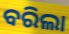
ବରିଲା